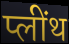
प्लींथ